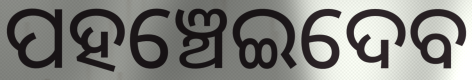
ପହଞ୍ଚେଇଦେବ